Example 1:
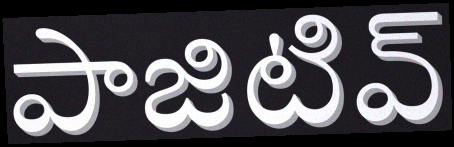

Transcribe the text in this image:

పాజిటివ్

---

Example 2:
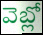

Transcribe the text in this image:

వెబ్లో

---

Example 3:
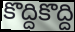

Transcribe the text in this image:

కొద్దికొద్ది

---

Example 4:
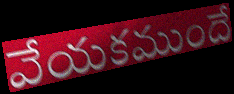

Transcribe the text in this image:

వేయకముందే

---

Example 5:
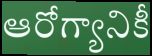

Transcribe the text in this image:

ఆరోగ్యానికీ